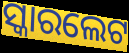
ସ୍କାରଲେଟ